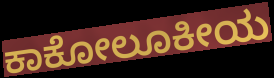
ಕಾಕೋಲೂಕೀಯ